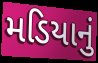
મડિયાનું